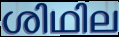
ശിഥില